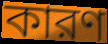
কারণ